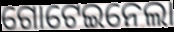
ଗୋଟେଇନେଲା